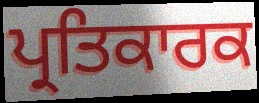
ਪ੍ਰਤਿਕਾਰਕ